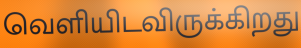
வெளியிடவிருக்கிறது